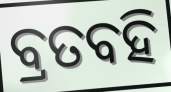
ବ୍ରତବହି